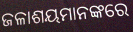
ଜଳାଶୟମାନଙ୍କରେ